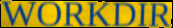
WORKDIR